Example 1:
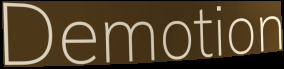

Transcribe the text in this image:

Demotion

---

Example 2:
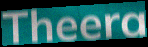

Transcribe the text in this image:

Theera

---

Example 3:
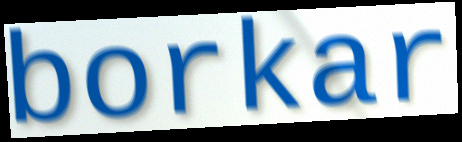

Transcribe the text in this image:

borkar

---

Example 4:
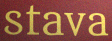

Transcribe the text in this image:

stava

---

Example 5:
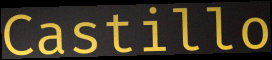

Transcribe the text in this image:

Castillo